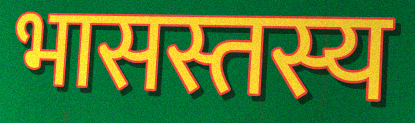
भासस्तस्य